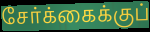
சேர்க்கைக்குப்